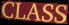
CLASS